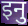
इनु